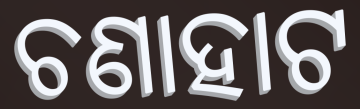
ଚଣାହାଟ